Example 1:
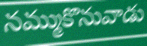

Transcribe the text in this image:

నమ్ముకొనువాడు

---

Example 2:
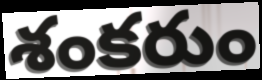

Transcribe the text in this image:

శంకరుం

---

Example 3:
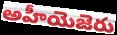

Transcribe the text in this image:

అహీయెజెరు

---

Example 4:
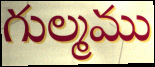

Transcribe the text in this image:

గుల్మము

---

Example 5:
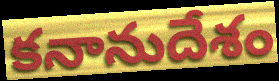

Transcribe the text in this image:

కనానుదేశం